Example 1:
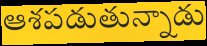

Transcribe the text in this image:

ఆశపడుతున్నాడు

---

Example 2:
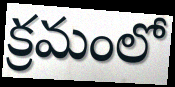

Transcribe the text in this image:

క్రమంలో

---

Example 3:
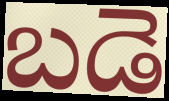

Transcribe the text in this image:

బడె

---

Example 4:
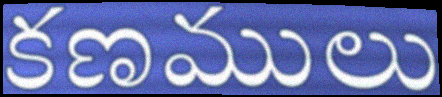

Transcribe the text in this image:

కణములు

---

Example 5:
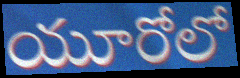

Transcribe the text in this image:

యూరోలో